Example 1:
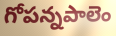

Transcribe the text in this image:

గోపన్నపాలెం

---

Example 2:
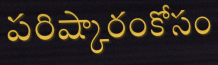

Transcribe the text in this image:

పరిష్కారంకోసం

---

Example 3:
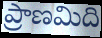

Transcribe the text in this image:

ప్రాణమిది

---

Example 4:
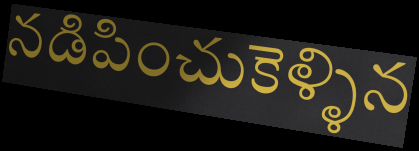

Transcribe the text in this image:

నడిపించుకెళ్ళిన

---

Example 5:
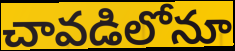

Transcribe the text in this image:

చావడిలోనూ